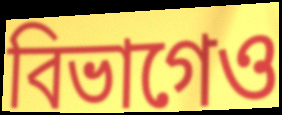
বিভাগেও